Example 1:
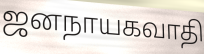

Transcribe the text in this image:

ஜனநாயகவாதி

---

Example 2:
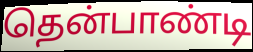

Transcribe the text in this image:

தென்பாண்டி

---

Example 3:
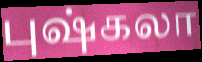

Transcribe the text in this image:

புஷ்கலா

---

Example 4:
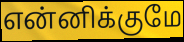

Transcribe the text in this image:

என்னிக்குமே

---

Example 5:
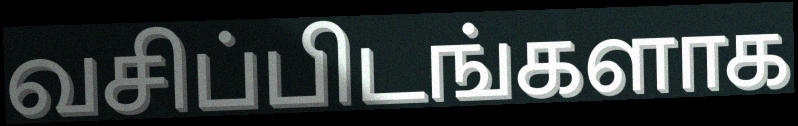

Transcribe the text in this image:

வசிப்பிடங்களாக